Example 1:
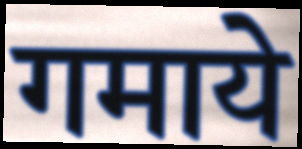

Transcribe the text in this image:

गमाये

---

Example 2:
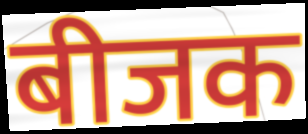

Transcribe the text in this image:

बीजक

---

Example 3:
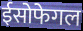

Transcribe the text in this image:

ईसोफेगल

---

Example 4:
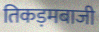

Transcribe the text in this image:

तिकड़मबाजी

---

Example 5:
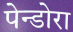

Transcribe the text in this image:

पेन्डोरा